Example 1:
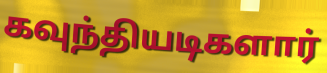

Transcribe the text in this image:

கவுந்தியடிகளார்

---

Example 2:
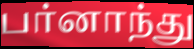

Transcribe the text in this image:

பர்னாந்து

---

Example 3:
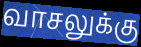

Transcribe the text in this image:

வாசலுக்கு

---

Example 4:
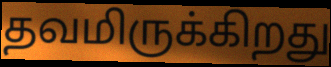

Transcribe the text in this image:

தவமிருக்கிறது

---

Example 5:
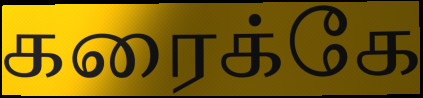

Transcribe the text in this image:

கரைக்கே